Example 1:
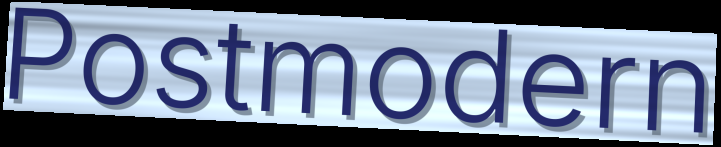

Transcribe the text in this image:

Postmodern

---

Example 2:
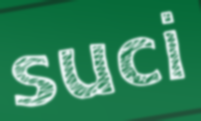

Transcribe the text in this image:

suci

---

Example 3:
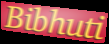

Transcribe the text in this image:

Bibhuti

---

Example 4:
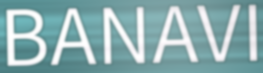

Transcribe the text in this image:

BANAVI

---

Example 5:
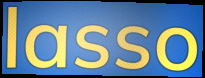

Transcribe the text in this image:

lasso